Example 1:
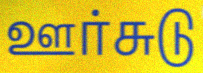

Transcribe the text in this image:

ஊர்சுடு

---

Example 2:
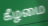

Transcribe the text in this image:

கீழமை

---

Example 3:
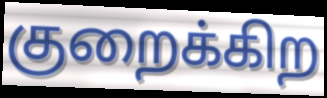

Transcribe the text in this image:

குறைக்கிற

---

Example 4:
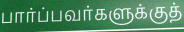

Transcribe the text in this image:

பார்ப்பவர்களுக்குத்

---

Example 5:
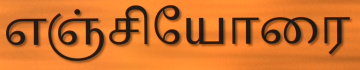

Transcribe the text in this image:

எஞ்சியோரை